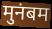
मुनंबम